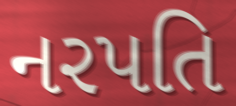
નરપતિ